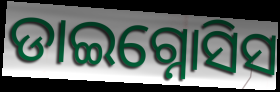
ଡାଇଗ୍ନୋସିସ